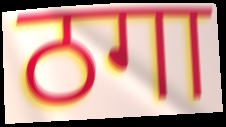
ठगा